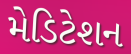
મેડિટેશન